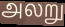
அலறு